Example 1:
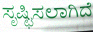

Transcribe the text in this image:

ಸೃಷ್ಟಿಸಲಾಗಿದೆ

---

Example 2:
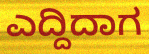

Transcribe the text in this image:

ಎದ್ದಿದಾಗ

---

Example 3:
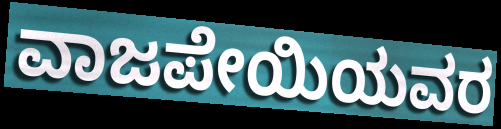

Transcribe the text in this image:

ವಾಜಪೇಯಿಯವರ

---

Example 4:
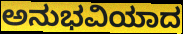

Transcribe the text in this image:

ಅನುಭವಿಯಾದ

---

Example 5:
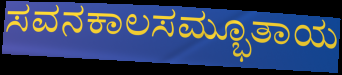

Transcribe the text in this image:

ಸವನಕಾಲಸಮ್ಭೂತಾಯ